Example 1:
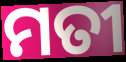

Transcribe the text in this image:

ମତୀ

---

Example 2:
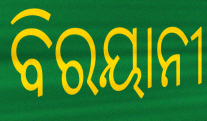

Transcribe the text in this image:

ବିରୟାନୀ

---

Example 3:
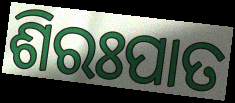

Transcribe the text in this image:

ଶିରଃପାତ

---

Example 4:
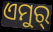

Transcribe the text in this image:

ଏମୁର୍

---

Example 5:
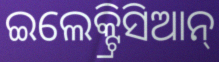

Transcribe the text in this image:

ଇଲେକ୍ଟ୍ରିସିଆନ୍